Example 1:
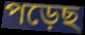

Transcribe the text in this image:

পড়েছ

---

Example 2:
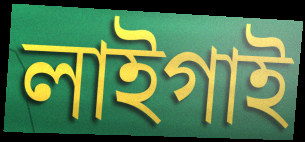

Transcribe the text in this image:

লাইগাই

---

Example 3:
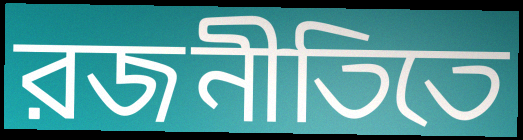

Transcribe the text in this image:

রজনীতিতে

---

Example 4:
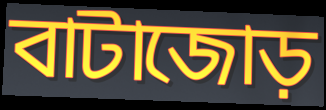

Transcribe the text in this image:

বাটাজোড়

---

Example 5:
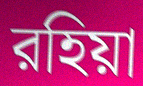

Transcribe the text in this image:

রহিয়া